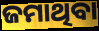
ଜମାଥିବା